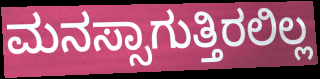
ಮನಸ್ಸಾಗುತ್ತಿರಲಿಲ್ಲ